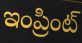
ఇంప్రింట్